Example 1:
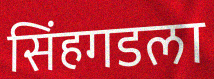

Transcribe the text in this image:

सिंहगडला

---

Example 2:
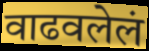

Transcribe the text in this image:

वाढवलेलं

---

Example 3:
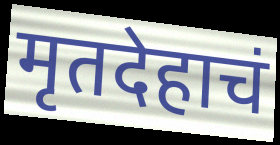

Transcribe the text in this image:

मृतदेहाचं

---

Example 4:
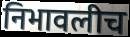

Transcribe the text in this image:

निभावलीच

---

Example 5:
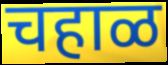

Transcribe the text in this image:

चहाळ